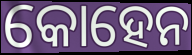
କୋହେନ